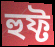
হুফ্ট